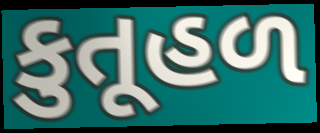
કુતૂહળ